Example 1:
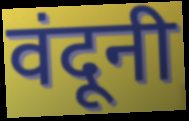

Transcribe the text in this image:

वंदूनी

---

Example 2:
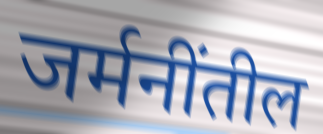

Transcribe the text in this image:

जर्मनींतील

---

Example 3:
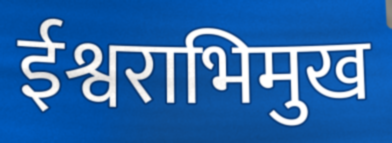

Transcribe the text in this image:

ईश्वराभिमुख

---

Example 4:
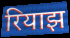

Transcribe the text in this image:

रियाझ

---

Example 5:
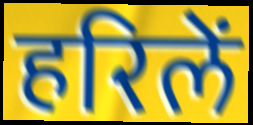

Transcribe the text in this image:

हरिलें